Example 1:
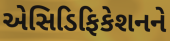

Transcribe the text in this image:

એસિડિફિકેશનને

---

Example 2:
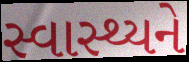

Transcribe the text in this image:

સ્વાસ્થ્યને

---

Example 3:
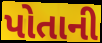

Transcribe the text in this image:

પોતાની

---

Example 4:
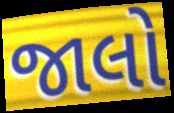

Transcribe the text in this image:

જાલો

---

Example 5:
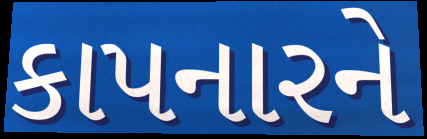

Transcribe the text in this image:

કાપનારને